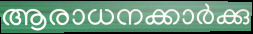
ആരാധനക്കാർക്കു